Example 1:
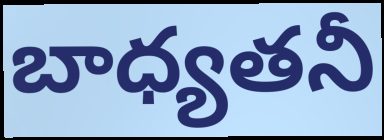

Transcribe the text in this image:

బాధ్యతనీ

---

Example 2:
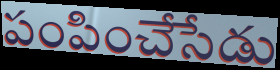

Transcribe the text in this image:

పంపించేసేడు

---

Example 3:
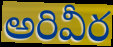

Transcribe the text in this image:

అరివీర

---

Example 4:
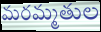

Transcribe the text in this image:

మరమ్మతుల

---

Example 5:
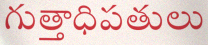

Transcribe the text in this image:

గుత్తాధిపతులు